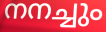
നനച്ചും